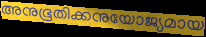
അനുഭൂതിക്കനുയോജ്യമായ